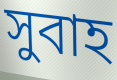
সুবাহ